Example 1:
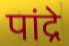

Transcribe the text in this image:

पांद्रे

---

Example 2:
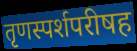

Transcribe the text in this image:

तृणस्पर्शपरीषह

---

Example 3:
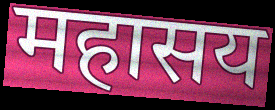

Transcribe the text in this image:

महासय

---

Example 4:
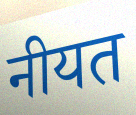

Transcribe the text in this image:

नीयत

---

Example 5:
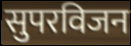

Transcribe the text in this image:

सुपरविजन